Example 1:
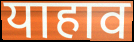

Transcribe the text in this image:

याहाव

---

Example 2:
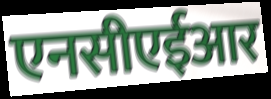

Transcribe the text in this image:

एनसीएईआर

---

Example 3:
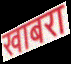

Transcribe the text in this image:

खाबरा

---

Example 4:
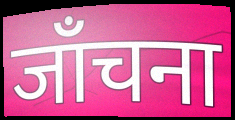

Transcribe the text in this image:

जाँचना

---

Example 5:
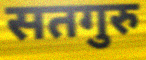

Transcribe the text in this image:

सतगुरु